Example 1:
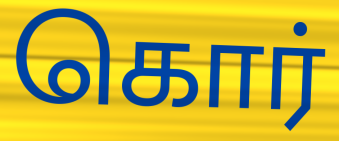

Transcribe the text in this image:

கொர்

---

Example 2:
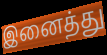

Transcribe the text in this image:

இனைத்து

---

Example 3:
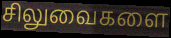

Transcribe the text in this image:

சிலுவைகளை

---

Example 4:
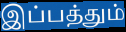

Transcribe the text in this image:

இப்பத்தும்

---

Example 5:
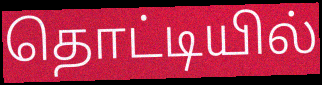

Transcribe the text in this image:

தொட்டியில்